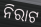
ନିରାଟ